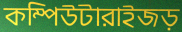
কম্পিউটারাইজড়